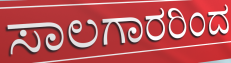
ಸಾಲಗಾರರಿಂದ